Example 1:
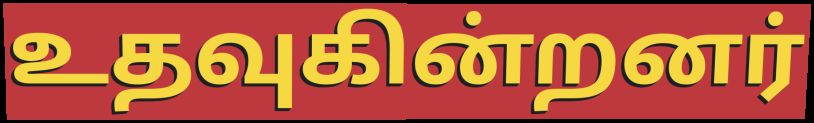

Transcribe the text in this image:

உதவுகின்றனர்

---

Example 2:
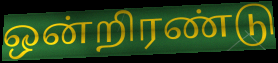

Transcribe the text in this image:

ஒன்றிரண்டு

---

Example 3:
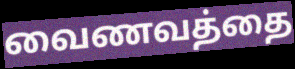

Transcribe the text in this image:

வைணவத்தை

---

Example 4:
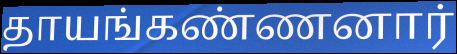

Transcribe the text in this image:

தாயங்கண்ணனார்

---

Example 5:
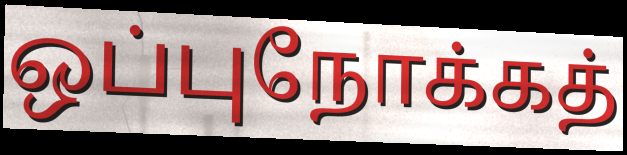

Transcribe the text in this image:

ஒப்புநோக்கத்